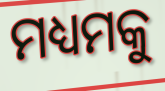
ମଧ୍ୟମକୁ